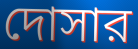
দোসার